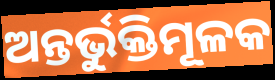
ଅନ୍ତର୍ଭୁକ୍ତିମୂଳକ